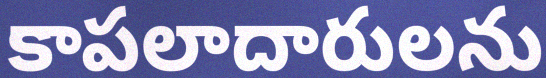
కాపలాదారులను